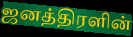
ஜனத்திரளின்